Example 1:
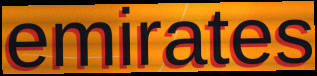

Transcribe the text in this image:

emirates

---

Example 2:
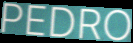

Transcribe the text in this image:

PEDRO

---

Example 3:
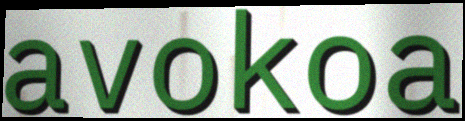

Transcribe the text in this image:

avokoa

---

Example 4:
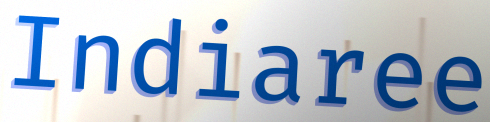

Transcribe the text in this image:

Indiaree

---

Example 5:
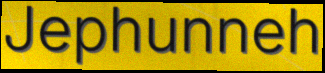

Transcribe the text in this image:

Jephunneh